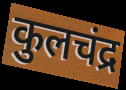
कुलचंद्र